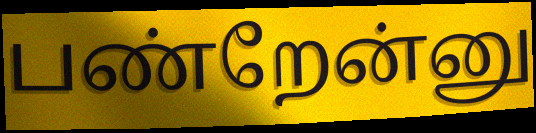
பண்றேன்னு